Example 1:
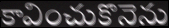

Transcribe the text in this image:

కావించుకొనెను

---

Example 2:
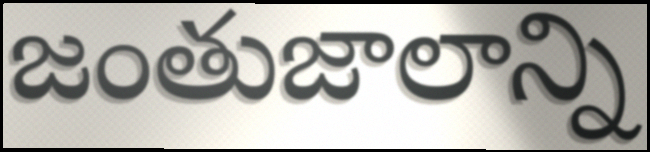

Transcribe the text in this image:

జంతుజాలాన్ని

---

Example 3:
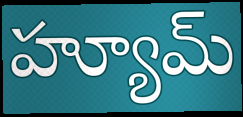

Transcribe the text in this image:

హ్యూమ్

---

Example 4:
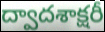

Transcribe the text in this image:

ద్వాదశాక్షరీ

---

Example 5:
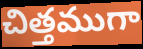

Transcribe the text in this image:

చిత్తముగా